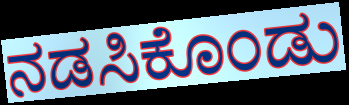
ನಡಸಿಕೊಂಡು